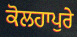
ਕੋਲਹਾਪੁਰੇ